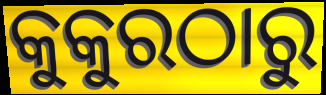
କୁକୁରଠାରୁ